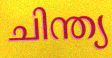
ചിന്ത്യ